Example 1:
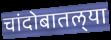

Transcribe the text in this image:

चांदोबातल्या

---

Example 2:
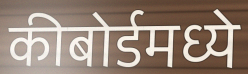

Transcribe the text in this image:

कीबोर्डमध्ये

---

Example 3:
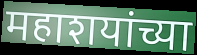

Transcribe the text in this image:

महाशयांच्या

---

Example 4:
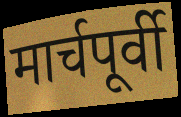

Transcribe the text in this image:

मार्चपूर्वी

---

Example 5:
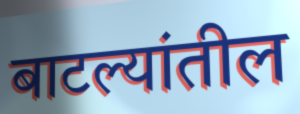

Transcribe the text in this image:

बाटल्यांतील